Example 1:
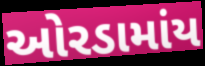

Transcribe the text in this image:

ઓરડામાંય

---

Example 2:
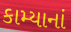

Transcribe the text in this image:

કામ્યાનાં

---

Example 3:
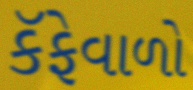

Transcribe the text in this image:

કૅફેવાળો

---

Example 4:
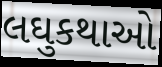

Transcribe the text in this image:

લઘુકથાઓ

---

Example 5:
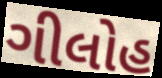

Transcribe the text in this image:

ગીલોહ